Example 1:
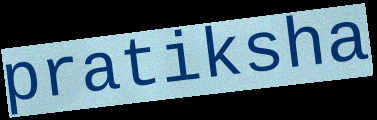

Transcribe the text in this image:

pratiksha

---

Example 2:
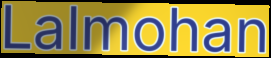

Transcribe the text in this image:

Lalmohan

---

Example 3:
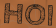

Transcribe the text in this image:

HOI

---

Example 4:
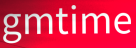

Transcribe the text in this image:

gmtime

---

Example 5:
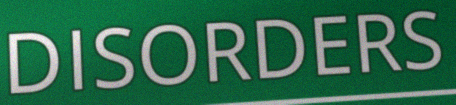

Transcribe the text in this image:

DISORDERS